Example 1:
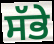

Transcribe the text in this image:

ਸੱਭੇ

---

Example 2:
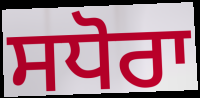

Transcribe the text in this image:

ਸਧੋਰਾ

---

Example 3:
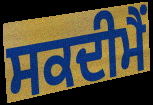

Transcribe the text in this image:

ਸਕਦੀਮੈਂ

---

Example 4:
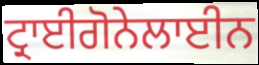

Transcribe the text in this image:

ਟ੍ਰਾਈਗੋਨੇਲਾਈਨ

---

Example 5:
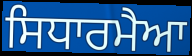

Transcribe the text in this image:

ਸਿਧਾਰਮੈਆ